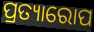
ପ୍ରତ୍ୟାରୋପ